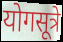
योगसूत्रे